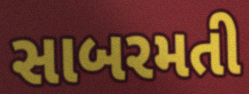
સાબરમતી